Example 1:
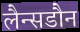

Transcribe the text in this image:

लैन्सडौन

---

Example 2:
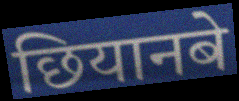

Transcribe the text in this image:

छियानबे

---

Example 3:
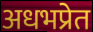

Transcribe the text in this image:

अधभप्रेत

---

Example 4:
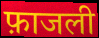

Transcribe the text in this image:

फ़ाजली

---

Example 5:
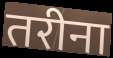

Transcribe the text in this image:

तरीना